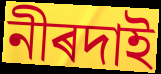
নীৰদাই